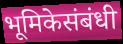
भूमिकेसंबंधी